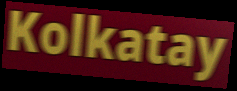
Kolkatay